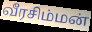
வீரசிம்மன்